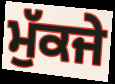
ਮੁੱਕਜੇ